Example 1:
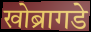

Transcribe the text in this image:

खोब्रागडे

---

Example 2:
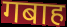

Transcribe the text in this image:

गबाह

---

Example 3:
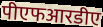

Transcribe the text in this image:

पीएफआरडीए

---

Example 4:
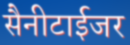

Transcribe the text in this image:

सैनीटाईजर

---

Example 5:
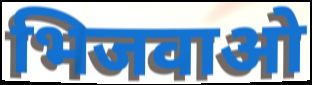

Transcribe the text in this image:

भिजवाओ